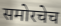
समोरचेच